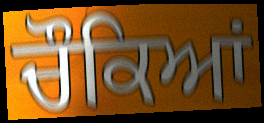
ਚੌਕਿਆਂ